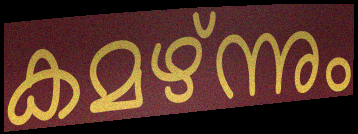
കമഴ്ന്നും